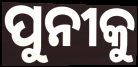
ପୁନୀକୁ